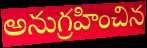
అనుగ్రహించిన